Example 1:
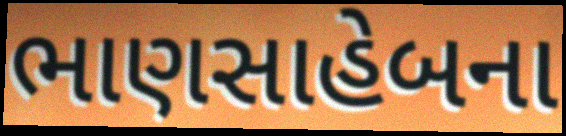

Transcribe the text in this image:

ભાણસાહેબના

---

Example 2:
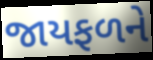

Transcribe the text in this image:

જાયફળને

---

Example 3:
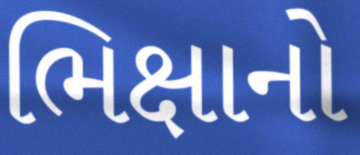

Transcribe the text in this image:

ભિક્ષાનો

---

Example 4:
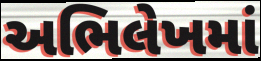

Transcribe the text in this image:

અભિલેખમાં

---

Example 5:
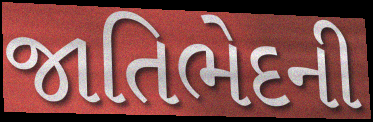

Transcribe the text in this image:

જાતિભેદની